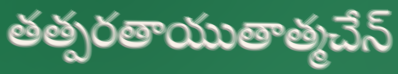
తత్పరతాయుతాత్మచేన్